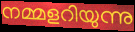
നമ്മളറിയുന്നു